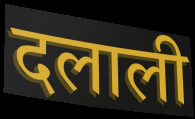
दलाली